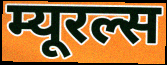
म्यूरल्स